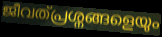
ജീവത്പ്രശ്നങ്ങളെയും